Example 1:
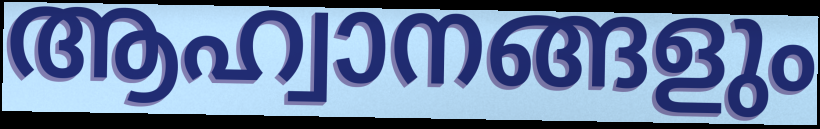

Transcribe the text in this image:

ആഹ്വാനങ്ങളും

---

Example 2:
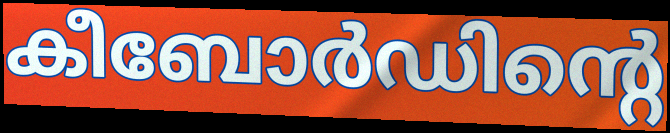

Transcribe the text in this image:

കീബോർഡിന്റെ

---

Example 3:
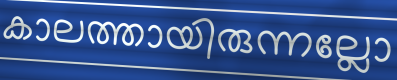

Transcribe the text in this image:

കാലത്തായിരുന്നല്ലോ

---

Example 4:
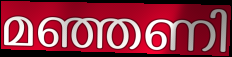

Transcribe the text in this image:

മഞ്ഞണി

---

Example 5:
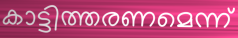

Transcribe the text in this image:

കാട്ടിത്തരണമെന്ന്